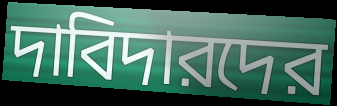
দাবিদারদের